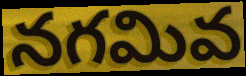
నగమివ